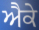
ਐਕੇ